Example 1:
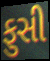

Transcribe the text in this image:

ફુસી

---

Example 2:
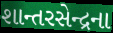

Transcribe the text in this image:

શાન્તરસેન્દ્રના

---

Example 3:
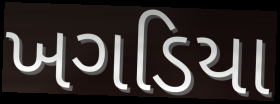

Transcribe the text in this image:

ખગડિયા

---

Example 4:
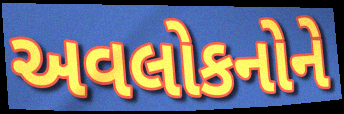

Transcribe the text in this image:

અવલોકનોને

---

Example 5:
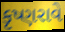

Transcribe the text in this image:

કૃષ્ણરાવે